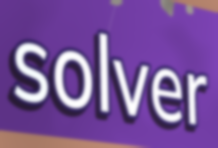
solver